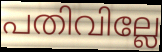
പതിവില്ലേ